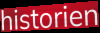
historien